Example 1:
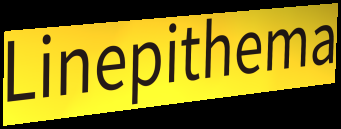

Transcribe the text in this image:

Linepithema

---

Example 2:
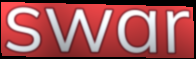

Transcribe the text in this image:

swar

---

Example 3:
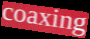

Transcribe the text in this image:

coaxing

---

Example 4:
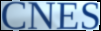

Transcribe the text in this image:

CNES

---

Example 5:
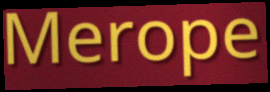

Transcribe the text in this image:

Merope